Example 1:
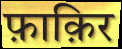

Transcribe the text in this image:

फ़ाक़िर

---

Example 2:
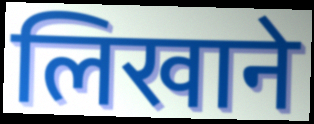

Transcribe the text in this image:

लिखाने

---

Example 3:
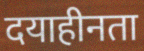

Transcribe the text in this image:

दयाहीनता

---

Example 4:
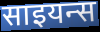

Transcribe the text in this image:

साइयन्स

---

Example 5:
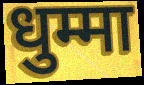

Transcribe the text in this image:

धुम्मा